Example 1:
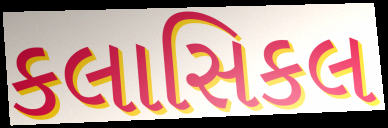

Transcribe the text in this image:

કલાસિકલ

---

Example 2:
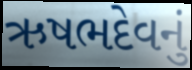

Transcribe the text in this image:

ઋષભદેવનું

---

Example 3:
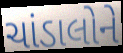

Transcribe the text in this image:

ચાંડાલોને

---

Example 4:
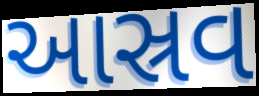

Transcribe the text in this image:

આસ્રવ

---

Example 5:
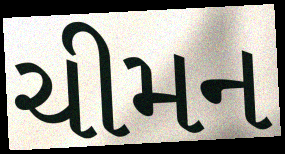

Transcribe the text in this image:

ચીમન